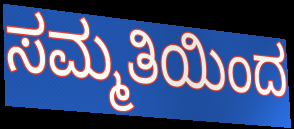
ಸಮ್ಮತಿಯಿಂದ